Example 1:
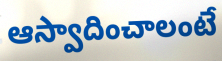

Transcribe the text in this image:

ఆస్వాదించాలంటే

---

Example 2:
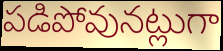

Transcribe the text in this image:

పడిపోవునట్లుగా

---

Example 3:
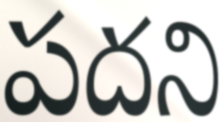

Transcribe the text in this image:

పదని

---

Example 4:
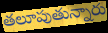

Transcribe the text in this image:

తలూపుతున్నారు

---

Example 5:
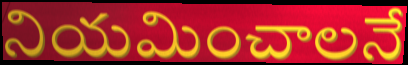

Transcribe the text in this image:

నియమించాలనే